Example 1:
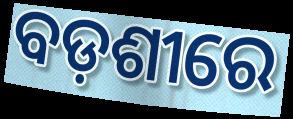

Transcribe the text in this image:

ବଡ଼ଶୀରେ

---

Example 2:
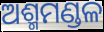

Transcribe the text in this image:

ଅଶ୍ମମଣ୍ଡଳ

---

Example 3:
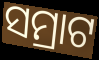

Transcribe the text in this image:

ସମ୍ରାଟ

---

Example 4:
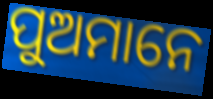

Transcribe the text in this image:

ପୁଅମାନେ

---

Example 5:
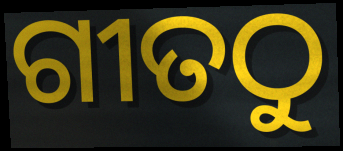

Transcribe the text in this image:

ଗୀତଠୁ